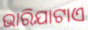
ଭାରିଯାଟାଏ